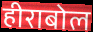
हीराबोल